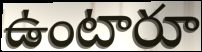
ఉంటారూ